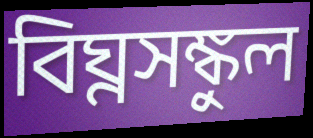
বিঘ্নসঙ্কুল